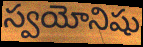
స్వయోనిషు